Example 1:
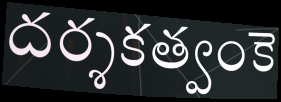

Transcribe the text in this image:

దర్శకత్వంకె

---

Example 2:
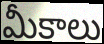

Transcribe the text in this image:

మీకాలు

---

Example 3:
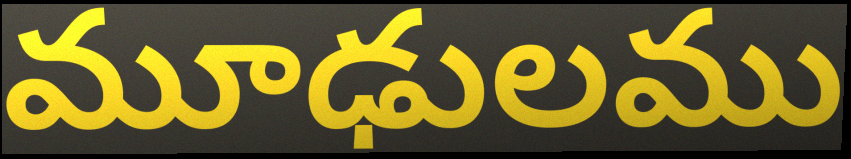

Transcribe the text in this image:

మూఢులము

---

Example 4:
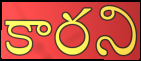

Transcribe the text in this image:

కారని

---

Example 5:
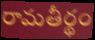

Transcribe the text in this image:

రామతీర్థం